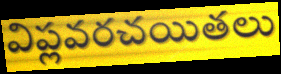
విప్లవరచయితలు